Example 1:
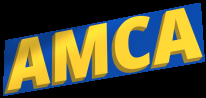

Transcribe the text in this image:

AMCA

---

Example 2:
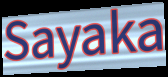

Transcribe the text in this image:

Sayaka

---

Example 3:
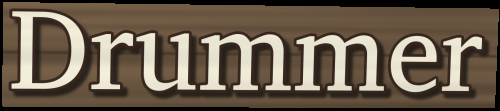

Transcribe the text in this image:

Drummer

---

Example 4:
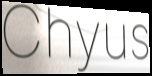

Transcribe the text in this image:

Chyus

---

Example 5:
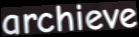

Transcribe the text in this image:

archieve